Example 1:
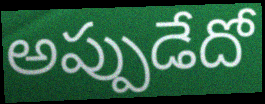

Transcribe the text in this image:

అప్పుడేదో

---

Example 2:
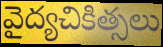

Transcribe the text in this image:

వైద్యచికిత్సలు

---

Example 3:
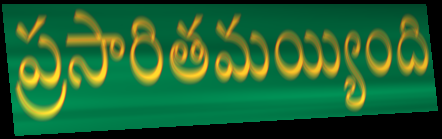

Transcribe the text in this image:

ప్రసారితమయ్యింది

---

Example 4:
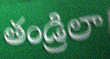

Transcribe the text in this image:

తండ్రిలా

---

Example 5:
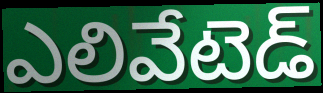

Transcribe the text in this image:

ఎలివేటెడ్